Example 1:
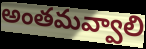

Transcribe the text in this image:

అంతమవ్వాలి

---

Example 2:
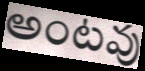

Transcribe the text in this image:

అంటవు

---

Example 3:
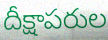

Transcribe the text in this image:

దీక్షాపరుల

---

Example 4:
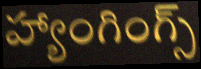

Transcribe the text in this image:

హ్యాంగింగ్స్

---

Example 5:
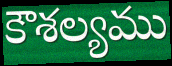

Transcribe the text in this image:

కౌశల్యము